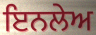
ਇਨਲੇਅ